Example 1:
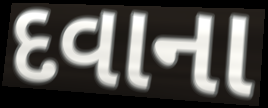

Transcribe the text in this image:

દવાના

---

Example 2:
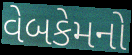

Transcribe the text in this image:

વેબકેમનો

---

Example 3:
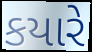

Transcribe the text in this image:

કયારે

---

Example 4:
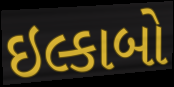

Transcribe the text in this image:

ઇલ્કાબો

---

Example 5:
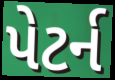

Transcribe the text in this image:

પેટર્ન